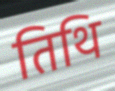
तिथि